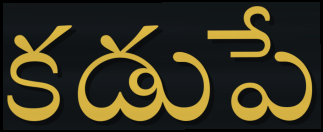
కడుపే